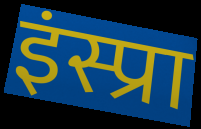
इंस्प्रा